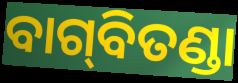
ବାଗ୍‌ବିତଣ୍ଡା